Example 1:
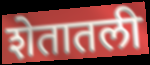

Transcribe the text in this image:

शेतातली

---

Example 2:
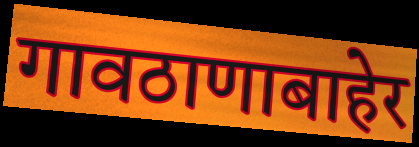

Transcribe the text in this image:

गावठाणाबाहेर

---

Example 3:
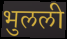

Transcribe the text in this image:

भुलली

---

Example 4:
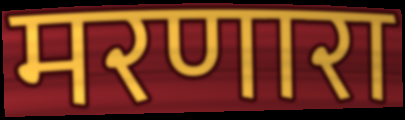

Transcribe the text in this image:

मरणारा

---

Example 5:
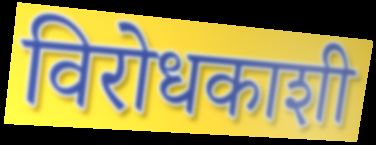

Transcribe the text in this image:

विरोधकाशी